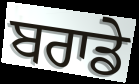
ਬਰਾਡੇ